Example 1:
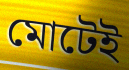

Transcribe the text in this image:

মোটেই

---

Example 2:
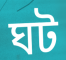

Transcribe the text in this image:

ঘট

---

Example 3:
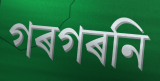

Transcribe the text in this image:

গৰগৰনি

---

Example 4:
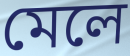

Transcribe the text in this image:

মেলে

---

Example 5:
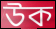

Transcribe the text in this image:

উক